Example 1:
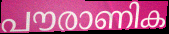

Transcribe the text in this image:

പൗരാണിക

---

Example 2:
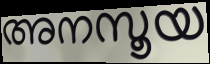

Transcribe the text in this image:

അനസൂയ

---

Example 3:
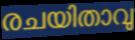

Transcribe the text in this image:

രചയിതാവു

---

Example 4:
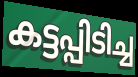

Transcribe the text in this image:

കട്ടപ്പിടിച്ച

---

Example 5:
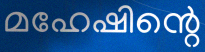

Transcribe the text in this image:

മഹേഷിന്റെ